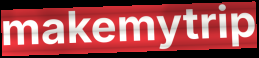
makemytrip